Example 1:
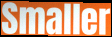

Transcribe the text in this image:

Smaller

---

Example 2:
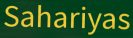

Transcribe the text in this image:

Sahariyas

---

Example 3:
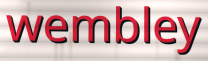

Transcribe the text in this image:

wembley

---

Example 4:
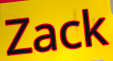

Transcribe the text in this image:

Zack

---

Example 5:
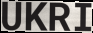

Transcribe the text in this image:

UKRI